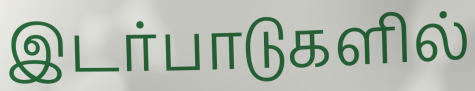
இடர்பாடுகளில்